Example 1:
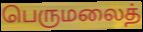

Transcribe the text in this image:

பெருமலைத்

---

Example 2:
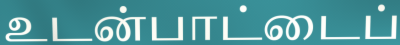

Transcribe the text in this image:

உடன்பாட்டைப்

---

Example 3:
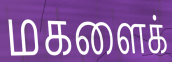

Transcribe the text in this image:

மகளைக்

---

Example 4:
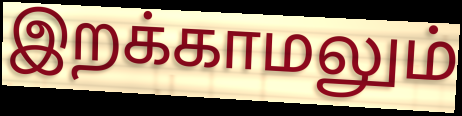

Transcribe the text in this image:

இறக்காமலும்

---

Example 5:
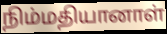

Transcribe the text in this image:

நிம்மதியானாள்